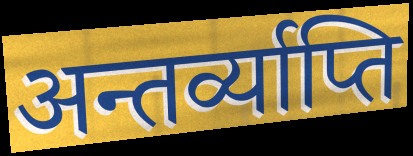
अन्तर्व्याप्ति